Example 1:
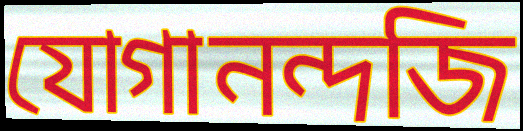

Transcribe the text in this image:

যোগানন্দজি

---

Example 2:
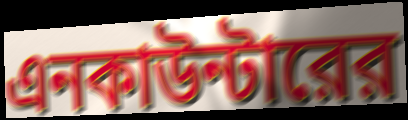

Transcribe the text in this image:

এনকাউন্টারের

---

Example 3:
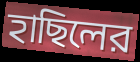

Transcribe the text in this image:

হাছিলের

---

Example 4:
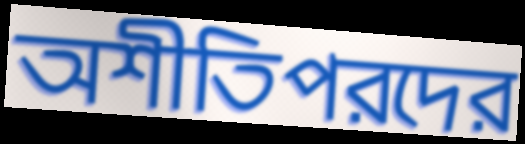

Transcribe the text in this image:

অশীতিপরদের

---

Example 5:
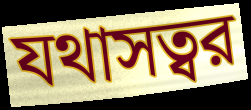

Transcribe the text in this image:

যথাসত্বর